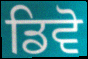
ਡਿਵੋ